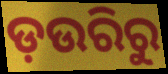
ଡ଼ଉରିରୁ